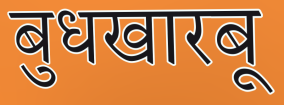
बुधखारबू